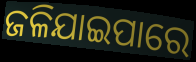
ଜଳିଯାଇପାରେ